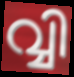
വ്വി